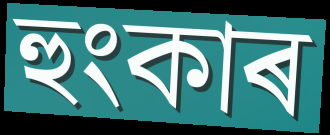
হুংকাৰ